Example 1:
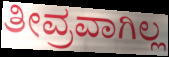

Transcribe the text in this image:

ತೀವ್ರವಾಗಿಲ್ಲ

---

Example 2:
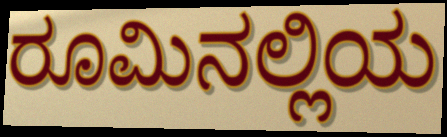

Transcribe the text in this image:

ರೂಮಿನಲ್ಲಿಯ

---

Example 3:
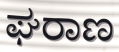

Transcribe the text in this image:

ಘರಾಣ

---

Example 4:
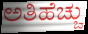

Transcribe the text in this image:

ಅತಿಹೆಚ್ಚು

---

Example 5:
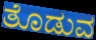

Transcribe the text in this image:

ತೊಡುವ